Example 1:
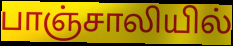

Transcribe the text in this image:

பாஞ்சாலியில்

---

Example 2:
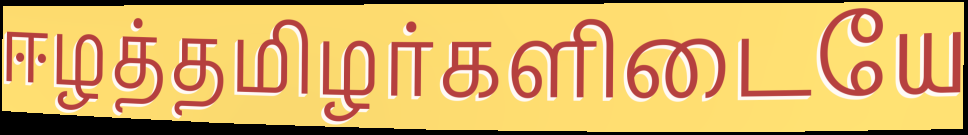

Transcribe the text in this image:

ஈழத்தமிழர்களிடையே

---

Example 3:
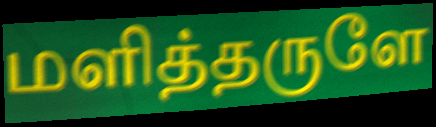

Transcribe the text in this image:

மளித்தருளே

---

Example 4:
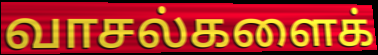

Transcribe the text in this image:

வாசல்களைக்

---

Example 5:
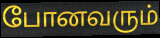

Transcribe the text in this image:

போனவரும்